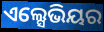
ଏଲ୍ସେଭିୟର